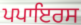
ਪਪਾਇਰਸ